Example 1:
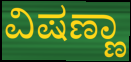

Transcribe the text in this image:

ವಿಷಣ್ಣಾ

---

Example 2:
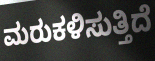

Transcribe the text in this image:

ಮರುಕಳಿಸುತ್ತಿದೆ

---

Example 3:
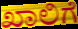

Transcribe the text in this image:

ಖಾಲಿಗೆ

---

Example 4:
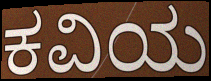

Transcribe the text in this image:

ಕವಿಯ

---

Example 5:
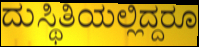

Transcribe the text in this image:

ದುಸ್ಥಿತಿಯಲ್ಲಿದ್ದರೂ